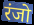
रंजो